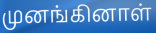
முனங்கினாள்